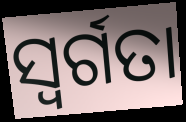
ସ୍ବର୍ଗତା